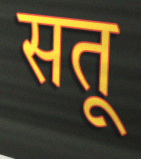
सतू